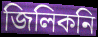
জিলিকনি